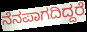
ನೆನಪಾಗದಿದ್ದರೆ